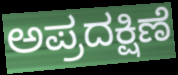
ಅಪ್ರದಕ್ಷಿಣೆ